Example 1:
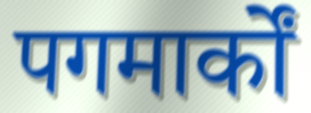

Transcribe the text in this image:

पगमार्कों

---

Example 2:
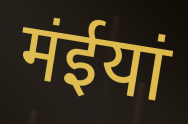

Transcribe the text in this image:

मंईयां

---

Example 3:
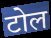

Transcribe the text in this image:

टोल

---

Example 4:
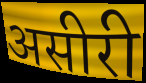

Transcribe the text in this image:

असीरी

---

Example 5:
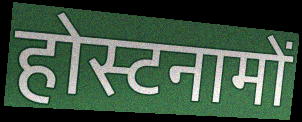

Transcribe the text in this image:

होस्टनामों